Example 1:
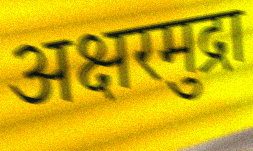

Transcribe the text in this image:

अक्षरमुद्रा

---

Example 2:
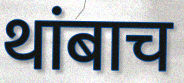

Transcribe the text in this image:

थांबाच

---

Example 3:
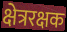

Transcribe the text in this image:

क्षेत्ररक्षक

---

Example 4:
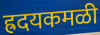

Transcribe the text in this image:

ह्रदयकमळी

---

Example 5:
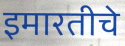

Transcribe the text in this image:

इमारतीचे